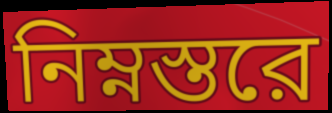
নিম্নস্তরে